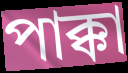
পাক্কা